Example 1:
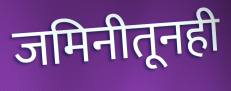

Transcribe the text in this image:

जमिनीतूनही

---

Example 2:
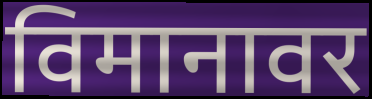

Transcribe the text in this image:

विमानावर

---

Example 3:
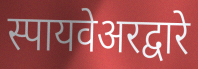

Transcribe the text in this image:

स्पायवेअरद्वारे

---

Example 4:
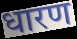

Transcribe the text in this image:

धारण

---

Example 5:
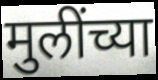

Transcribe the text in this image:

मुलींच्या